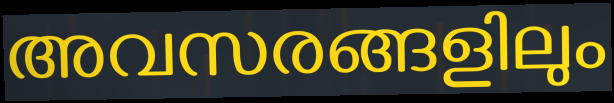
അവസരങ്ങളിലും